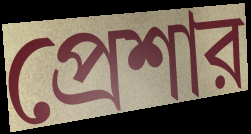
প্রেশার